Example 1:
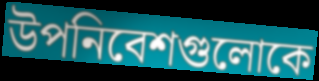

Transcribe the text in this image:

উপনিবেশগুলোকে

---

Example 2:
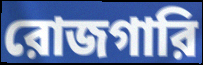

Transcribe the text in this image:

রোজগারি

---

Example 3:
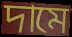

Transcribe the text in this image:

দামে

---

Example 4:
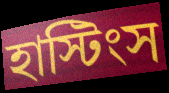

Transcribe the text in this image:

হাস্টিংস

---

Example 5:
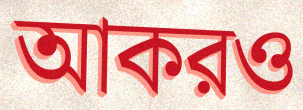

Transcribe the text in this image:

আকরও